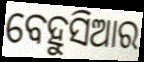
ବେହୁସିଆର